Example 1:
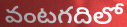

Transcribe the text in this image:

వంటగదిలో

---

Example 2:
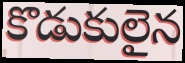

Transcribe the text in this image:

కొడుకులైన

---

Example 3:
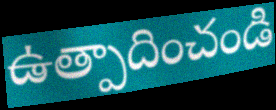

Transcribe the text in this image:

ఉత్పాదించండి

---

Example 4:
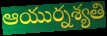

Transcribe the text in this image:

ఆయుర్నశ్యతి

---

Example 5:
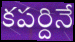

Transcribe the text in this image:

కపర్దినే